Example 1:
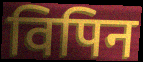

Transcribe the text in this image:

विपिन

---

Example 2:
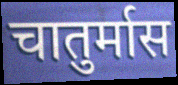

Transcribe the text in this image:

चातुर्मास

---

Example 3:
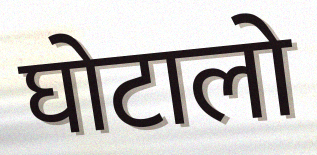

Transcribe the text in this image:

घोटालो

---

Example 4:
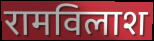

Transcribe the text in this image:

रामविलाश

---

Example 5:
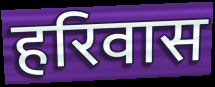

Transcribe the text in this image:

हरिवास